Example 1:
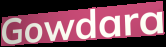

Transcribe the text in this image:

Gowdara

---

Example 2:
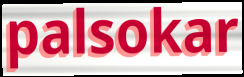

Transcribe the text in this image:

palsokar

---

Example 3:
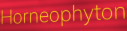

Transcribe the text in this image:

Horneophyton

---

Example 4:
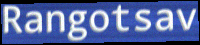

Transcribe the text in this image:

Rangotsav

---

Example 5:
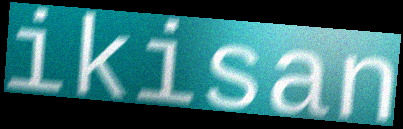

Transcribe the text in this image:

ikisan